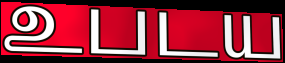
உபடய